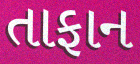
તાફાન